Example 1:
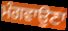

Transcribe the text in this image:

ਮੰਗਵਾਉਣਾ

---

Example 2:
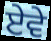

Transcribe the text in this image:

ਏਵੇ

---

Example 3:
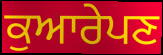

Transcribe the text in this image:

ਕੁਆਰੇਪਣ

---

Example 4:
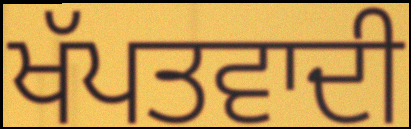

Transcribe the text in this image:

ਖੱਪਤਵਾਦੀ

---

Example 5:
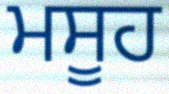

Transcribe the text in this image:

ਮਸੂਹ